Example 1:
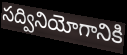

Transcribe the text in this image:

సద్వినియోగానికి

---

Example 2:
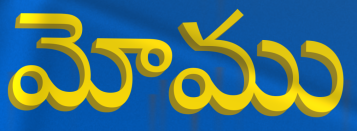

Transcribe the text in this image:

మోము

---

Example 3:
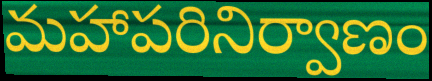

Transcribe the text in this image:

మహాపరినిర్వాణం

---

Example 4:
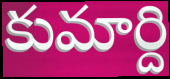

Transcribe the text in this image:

కుమార్ది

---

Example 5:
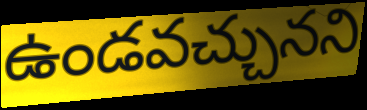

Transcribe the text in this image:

ఉండవచ్చునని